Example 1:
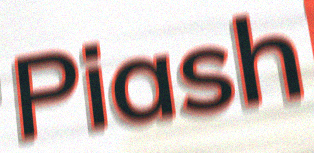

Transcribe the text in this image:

Piash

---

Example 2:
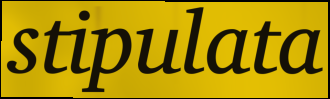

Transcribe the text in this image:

stipulata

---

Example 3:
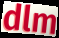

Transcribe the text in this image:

dlm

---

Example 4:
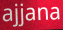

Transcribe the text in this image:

ajjana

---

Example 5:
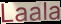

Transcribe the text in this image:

Laala